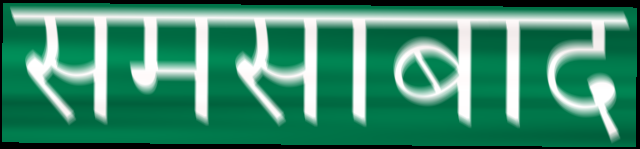
समसाबाद